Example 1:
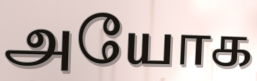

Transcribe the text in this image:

அயோக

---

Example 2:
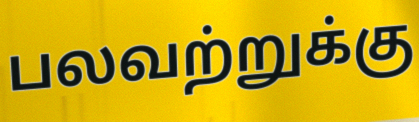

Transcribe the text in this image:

பலவற்றுக்கு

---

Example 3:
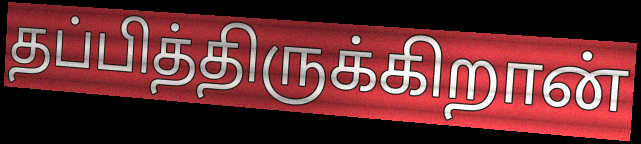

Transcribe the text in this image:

தப்பித்திருக்கிறான்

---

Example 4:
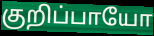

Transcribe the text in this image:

குறிப்பாயோ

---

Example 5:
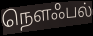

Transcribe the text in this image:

நௌஃபல்